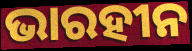
ଭାରହୀନ